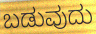
ಬಡುವುದು